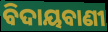
ବିଦାୟବାଣୀ